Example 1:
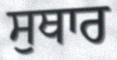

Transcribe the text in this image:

ਸੁਥਾਰ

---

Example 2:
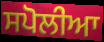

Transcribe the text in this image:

ਸਪੋਲੀਆ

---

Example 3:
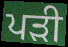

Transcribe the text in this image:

ਪਡ਼ੀ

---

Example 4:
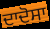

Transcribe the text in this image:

ਦਾਦੋਸਾ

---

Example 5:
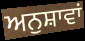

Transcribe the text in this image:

ਅਨੁਸ਼ਾਵਾਂ